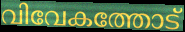
വിവേകത്തോട്